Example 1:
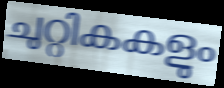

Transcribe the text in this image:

ചുറ്റികകളും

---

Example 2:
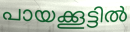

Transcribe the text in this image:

പായക്കൂട്ടിൽ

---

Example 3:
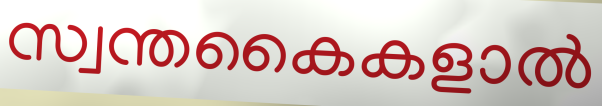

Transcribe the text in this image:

സ്വന്തകൈകളാൽ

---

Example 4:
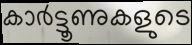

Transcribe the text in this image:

കാർട്ടൂണുകളുടെ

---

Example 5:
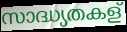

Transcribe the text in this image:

സാദ്ധ്യതകള്